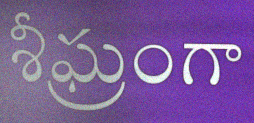
శీఘ్రంగా